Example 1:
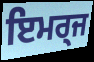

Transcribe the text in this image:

ਇਮਰ੍ਜ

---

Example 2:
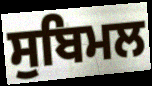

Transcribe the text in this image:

ਸੁਬਿਮਲ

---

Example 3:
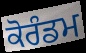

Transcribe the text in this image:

ਕੋਰੰਡਮ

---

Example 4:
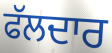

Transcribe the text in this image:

ਫੱਲਦਾਰ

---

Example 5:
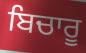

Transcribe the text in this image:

ਬਿਚਾਰੂ